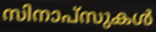
സിനാപ്സുകൾ